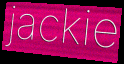
jackie